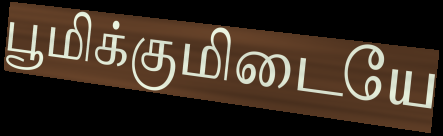
பூமிக்குமிடையே